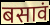
बसावं